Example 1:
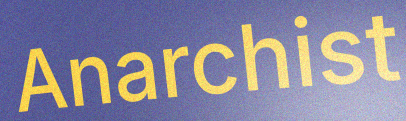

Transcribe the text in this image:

Anarchist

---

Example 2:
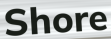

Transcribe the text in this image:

Shore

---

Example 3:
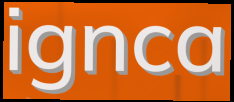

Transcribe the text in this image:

ignca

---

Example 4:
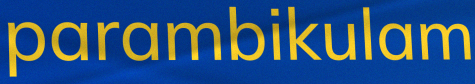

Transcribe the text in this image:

parambikulam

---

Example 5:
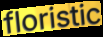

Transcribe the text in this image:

floristic